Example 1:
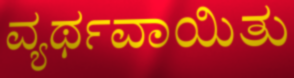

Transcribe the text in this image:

ವ್ಯರ್ಥವಾಯಿತು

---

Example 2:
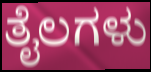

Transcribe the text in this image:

ತೈಲಗಳು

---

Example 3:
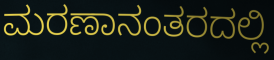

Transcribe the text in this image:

ಮರಣಾನಂತರದಲ್ಲಿ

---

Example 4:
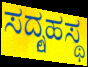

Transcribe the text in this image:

ಸದ್ಗೃಹಸ್ಥ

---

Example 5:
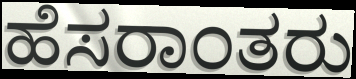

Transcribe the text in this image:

ಹೆಸರಾಂತರು